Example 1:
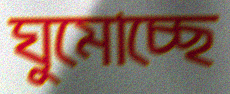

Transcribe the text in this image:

ঘুমোচ্ছে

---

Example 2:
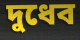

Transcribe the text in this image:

দুধেব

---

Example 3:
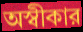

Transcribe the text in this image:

অস্বীকার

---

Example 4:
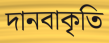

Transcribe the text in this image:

দানবাকৃতি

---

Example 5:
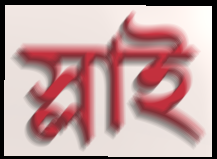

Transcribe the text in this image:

স্লাই